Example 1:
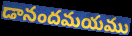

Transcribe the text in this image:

డానందమయము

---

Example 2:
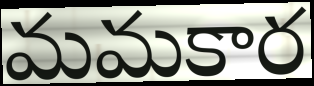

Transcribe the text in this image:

మమకార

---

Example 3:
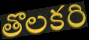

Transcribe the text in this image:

తొలకరి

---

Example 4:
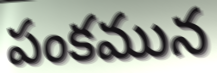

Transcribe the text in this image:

పంకమున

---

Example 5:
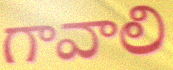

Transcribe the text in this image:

గావాలి